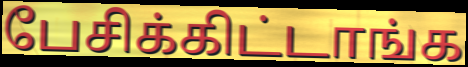
பேசிக்கிட்டாங்க